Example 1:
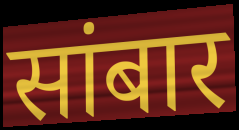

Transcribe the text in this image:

सांबार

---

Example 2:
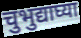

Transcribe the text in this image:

चुभुद्याघ्या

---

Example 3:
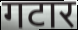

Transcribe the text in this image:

गटार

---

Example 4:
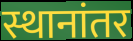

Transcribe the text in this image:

स्थानांतर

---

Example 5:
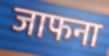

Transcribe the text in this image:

जाफना